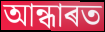
আন্ধাৰত